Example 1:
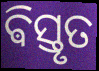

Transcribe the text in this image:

ଵିସ୍ତୃତ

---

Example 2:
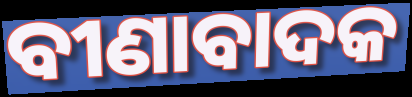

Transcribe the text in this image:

ବୀଣାବାଦକ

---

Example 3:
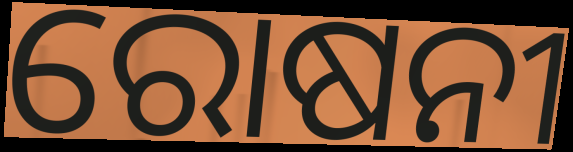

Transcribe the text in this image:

ରୋଷନୀ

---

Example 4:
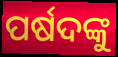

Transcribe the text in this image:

ପର୍ଷଦଙ୍କୁ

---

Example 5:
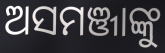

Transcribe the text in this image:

ଅସମଞ୍ଜାଙ୍କୁ